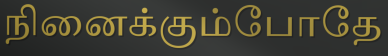
நினைக்கும்போதே